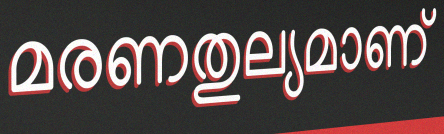
മരണതുല്യമാണ്